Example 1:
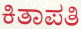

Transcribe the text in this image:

ಕಿತಾಪತಿ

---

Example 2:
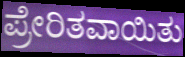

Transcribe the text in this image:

ಪ್ರೇರಿತವಾಯಿತು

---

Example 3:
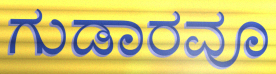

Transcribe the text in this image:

ಗುಡಾರವೂ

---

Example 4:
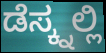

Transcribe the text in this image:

ಡೆಸ್ಕ್ನಲ್ಲಿ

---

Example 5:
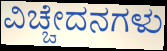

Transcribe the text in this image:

ವಿಚ್ಚೇದನಗಳು